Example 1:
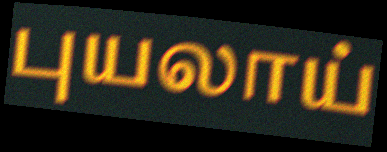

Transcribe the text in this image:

புயலாய்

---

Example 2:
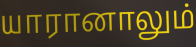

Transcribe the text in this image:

யாரானாலும்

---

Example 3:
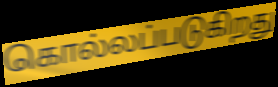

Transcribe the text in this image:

கொல்லப்படுகிறது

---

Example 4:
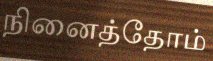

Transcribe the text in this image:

நினைத்தோம்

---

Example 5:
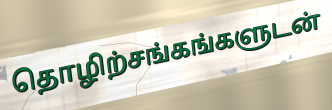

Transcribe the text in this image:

தொழிற்சங்கங்களுடன்